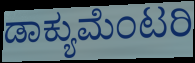
ಡಾಕ್ಯುಮೆಂಟರಿ